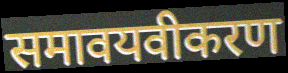
समावयवीकरण